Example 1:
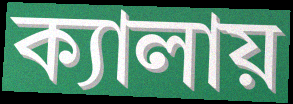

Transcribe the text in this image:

ক্যালায়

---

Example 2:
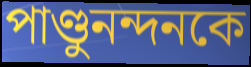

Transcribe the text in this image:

পাণ্ডুনন্দনকে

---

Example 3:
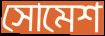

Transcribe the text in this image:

সোমেশ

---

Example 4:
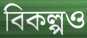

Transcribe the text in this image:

বিকল্পও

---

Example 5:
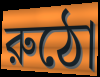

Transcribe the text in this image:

রুঠো